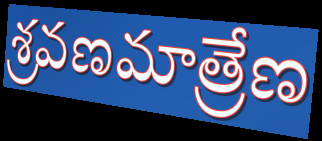
శ్రవణమాత్రేణ